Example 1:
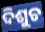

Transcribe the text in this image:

ଦିଶୁଚ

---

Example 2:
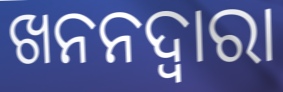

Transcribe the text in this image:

ଖନନଦ୍ୱାରା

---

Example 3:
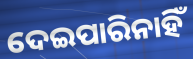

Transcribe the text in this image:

ଦେଇପାରିନାହିଁ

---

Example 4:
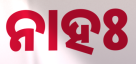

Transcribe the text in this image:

ନାହଃ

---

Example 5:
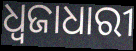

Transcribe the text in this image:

ଧ୍ବଜାଧାରୀ